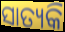
ସାତ୍ୟକି